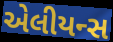
એલીયન્સ